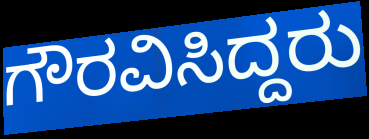
ಗೌರವಿಸಿದ್ದರು